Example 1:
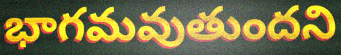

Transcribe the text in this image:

భాగమవుతుందని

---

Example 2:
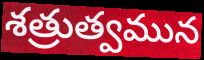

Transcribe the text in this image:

శత్రుత్వమున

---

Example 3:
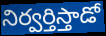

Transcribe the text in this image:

నిర్వర్తిస్తాడో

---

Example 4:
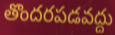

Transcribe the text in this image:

తొందరపడవద్దు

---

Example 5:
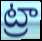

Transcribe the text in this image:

ట్రా